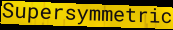
Supersymmetric